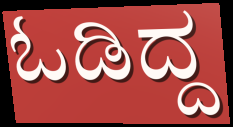
ಓಡಿದ್ದ